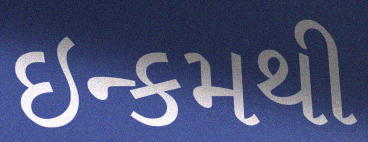
ઇન્કમથી